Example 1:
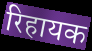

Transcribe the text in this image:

रिहायक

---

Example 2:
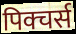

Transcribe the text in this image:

पिक्चर्स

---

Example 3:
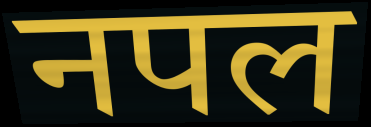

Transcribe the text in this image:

नपल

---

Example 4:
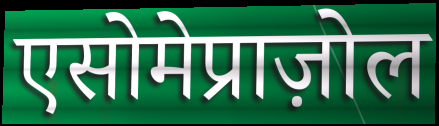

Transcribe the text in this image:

एसोमेप्राज़ोल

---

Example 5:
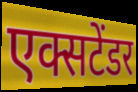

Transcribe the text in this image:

एक्सटेंडर